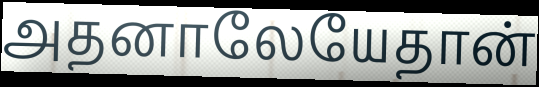
அதனாலேயேதான்